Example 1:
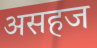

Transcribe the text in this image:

असहज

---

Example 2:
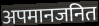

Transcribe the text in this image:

अपमानजनित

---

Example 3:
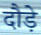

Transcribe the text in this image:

दौड़े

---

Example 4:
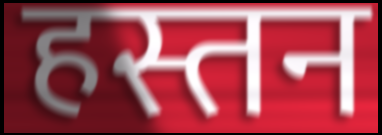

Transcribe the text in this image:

हस्तन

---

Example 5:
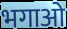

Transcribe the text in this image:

भगाओ